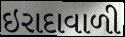
ઇરાદાવાળી